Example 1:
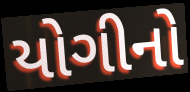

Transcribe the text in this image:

યોગીનો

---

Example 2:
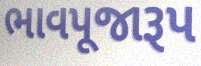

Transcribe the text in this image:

ભાવપૂજારૂપ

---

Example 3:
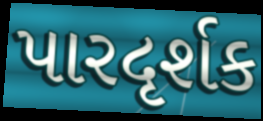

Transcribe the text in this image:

પારદૃર્શક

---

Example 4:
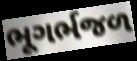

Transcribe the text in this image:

ભૂગર્ભજળ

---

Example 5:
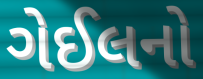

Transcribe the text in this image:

ગેઈલનો